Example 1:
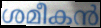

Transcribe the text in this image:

ശമീകൻ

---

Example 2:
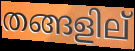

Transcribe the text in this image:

തങ്ങളില്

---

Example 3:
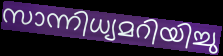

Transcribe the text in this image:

സാന്നിധ്യമറിയിച്ചു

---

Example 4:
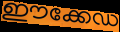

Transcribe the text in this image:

ഈക്കേഡ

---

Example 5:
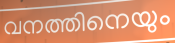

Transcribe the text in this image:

വനത്തിനെയും